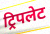
ट्रिपलेट